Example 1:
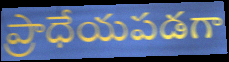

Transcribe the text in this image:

ప్రాధేయపడగా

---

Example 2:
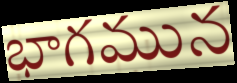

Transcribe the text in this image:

భాగమున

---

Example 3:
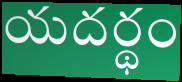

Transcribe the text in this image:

యదర్థం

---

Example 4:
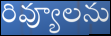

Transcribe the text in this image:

రివ్యూలను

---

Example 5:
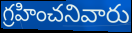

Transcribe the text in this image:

గ్రహించనివారు